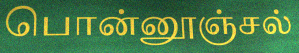
பொன்னூஞ்சல்